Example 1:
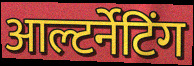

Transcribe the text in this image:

आल्टर्नेटिंग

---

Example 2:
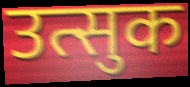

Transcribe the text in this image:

उत्सुक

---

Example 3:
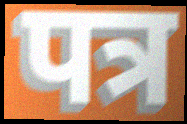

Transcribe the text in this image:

पत्र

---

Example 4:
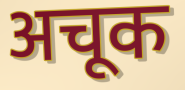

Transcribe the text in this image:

अचूक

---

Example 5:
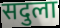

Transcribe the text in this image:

सदुला